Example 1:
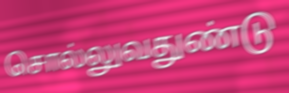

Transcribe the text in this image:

சொல்லுவதுண்டு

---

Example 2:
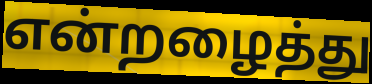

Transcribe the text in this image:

என்றழைத்து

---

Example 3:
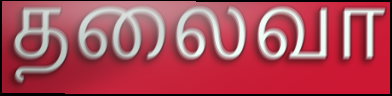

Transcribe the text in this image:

தலைவா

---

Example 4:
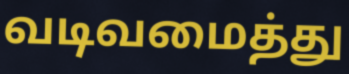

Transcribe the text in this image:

வடிவமைத்து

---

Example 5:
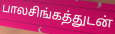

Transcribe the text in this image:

பாலசிங்கத்துடன்